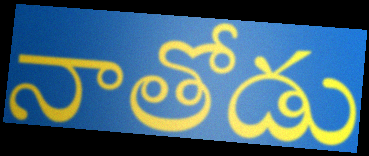
నాతోడు